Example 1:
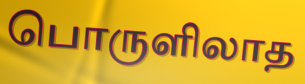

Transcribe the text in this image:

பொருளிலாத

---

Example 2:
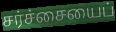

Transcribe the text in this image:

சர்ச்சையைப்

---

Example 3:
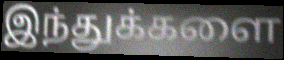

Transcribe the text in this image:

இந்துக்களை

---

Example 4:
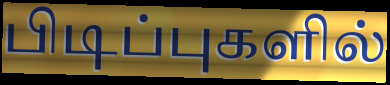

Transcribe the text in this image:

பிடிப்புகளில்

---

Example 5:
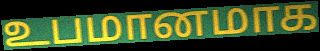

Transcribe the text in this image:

உபமானமாக